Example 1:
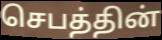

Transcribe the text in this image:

செபத்தின்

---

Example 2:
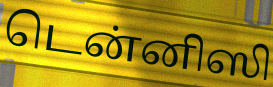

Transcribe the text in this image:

டென்னிஸி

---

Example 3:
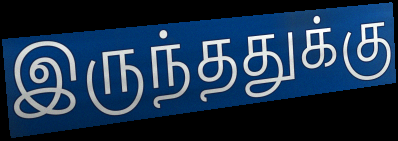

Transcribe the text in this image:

இருந்ததுக்கு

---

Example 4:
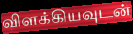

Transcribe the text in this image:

விளக்கியவுடன்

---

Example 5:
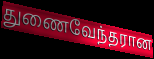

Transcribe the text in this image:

துணைவேந்தரான